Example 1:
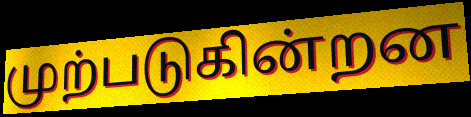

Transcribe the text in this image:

முற்படுகின்றன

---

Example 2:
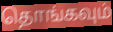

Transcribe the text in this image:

தொங்கவும்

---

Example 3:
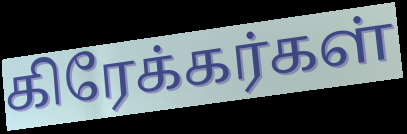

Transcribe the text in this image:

கிரேக்கர்கள்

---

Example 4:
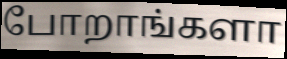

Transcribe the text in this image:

போறாங்களா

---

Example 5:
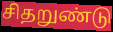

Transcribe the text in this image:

சிதறுண்டு